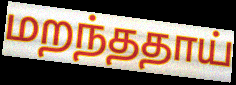
மறந்ததாய்